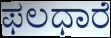
ಫಲಧಾರೆ